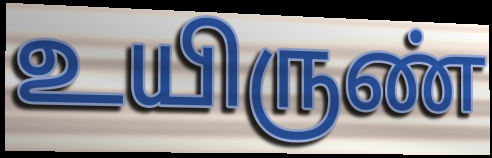
உயிருண்